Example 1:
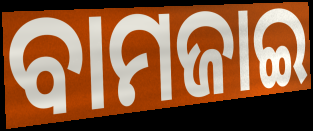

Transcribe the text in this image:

ବାମଜାଇ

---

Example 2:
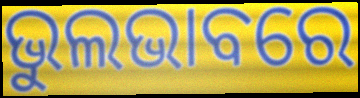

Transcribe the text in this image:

ଭୁଲଭାବରେ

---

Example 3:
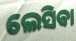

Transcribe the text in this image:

ଲେସିଵା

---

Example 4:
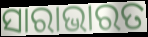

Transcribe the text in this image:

ସାରାଭାରତ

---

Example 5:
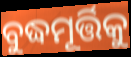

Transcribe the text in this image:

ବୁଦ୍ଧମୂର୍ତ୍ତିକୁ